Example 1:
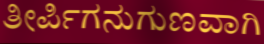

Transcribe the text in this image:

ತೀರ್ಪಿಗನುಗುಣವಾಗಿ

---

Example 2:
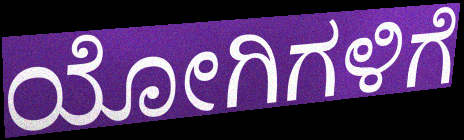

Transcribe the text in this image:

ಯೋಗಿಗಳಿಗೆ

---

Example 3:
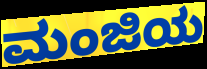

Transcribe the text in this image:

ಮಂಜಿಯ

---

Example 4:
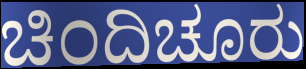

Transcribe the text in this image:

ಚಿಂದಿಚೂರು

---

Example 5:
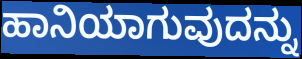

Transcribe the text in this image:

ಹಾನಿಯಾಗುವುದನ್ನು